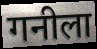
गनीला